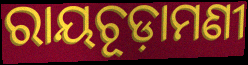
ରାୟଚୂଡ଼ାମଣୀ